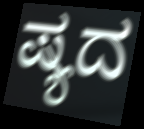
ಷ್ಯದ